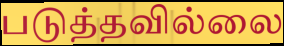
படுத்தவில்லை